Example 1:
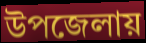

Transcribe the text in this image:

উপজেলায়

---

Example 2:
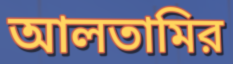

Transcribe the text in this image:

আলতামির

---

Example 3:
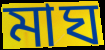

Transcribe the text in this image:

মাঘ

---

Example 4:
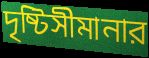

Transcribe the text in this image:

দৃষ্টিসীমানার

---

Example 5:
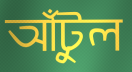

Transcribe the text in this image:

আঁটুল